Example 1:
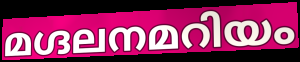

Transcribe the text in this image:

മഗ്ദലനമറിയം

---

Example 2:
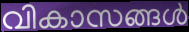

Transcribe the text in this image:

വികാസങ്ങൾ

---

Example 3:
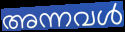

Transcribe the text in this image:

അന്നവൾ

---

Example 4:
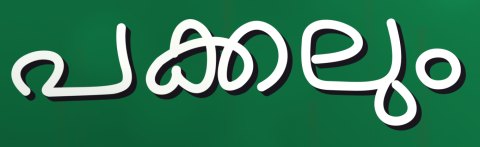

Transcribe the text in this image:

പക്കലും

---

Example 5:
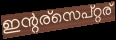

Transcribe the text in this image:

ഇന്റര്സെപ്റ്റര്